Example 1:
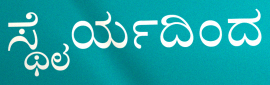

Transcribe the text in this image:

ಸ್ಥೈರ್ಯದಿಂದ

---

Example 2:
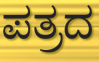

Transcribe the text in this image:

ಪತ್ರದ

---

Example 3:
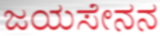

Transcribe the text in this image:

ಜಯಸೇನನ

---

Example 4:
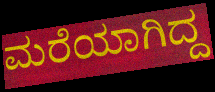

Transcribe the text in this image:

ಮರೆಯಾಗಿದ್ದ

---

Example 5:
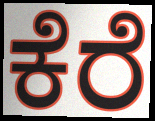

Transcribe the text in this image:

ಕೆರೆ